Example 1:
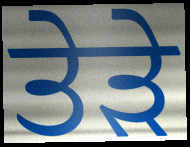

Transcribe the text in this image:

ਤੇੜੇ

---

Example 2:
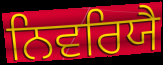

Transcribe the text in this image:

ਨਿਵਰਿਯੈ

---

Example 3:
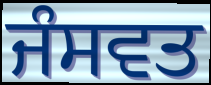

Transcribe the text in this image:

ਜੰਸਵਤ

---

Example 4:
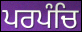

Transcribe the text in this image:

ਪਰਪੰਚਿ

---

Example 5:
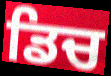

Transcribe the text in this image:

ਡਿਚ